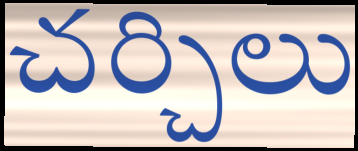
చర్చిలు